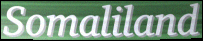
Somaliland